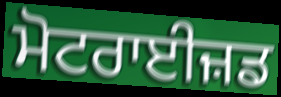
ਮੋਟਰਾਈਜ਼ਡ